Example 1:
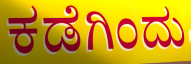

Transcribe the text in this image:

ಕಡೆಗಿಂದು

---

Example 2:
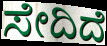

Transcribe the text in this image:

ಸೇದಿದೆ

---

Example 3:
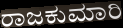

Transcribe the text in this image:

ರಾಜಕುಮಾರಿ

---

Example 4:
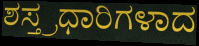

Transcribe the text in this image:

ಶಸ್ತ್ರಧಾರಿಗಳಾದ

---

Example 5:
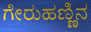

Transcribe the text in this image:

ಗೇರುಹಣ್ಣಿನ